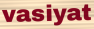
vasiyat